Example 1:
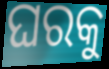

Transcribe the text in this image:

ଘରକୁ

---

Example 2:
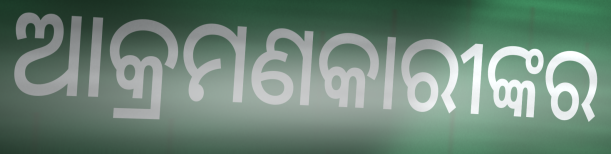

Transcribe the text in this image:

ଆକ୍ରମଣକାରୀଙ୍କର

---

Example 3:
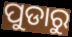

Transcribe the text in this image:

ପୁଡାରୁ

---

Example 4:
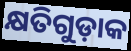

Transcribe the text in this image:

କ୍ଷତିଗୁଡ଼ାକ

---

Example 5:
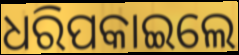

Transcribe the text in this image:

ଧରିପକାଇଲେ